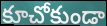
కూచోకుండా